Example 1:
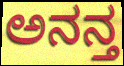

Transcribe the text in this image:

ಅನನ್ತ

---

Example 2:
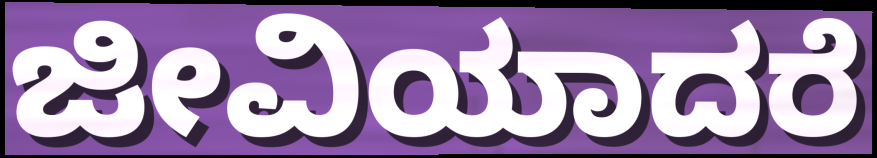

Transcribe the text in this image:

ಜೀವಿಯಾದರೆ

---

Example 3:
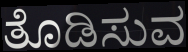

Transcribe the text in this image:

ತೊಡಿಸುವ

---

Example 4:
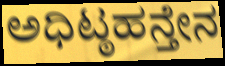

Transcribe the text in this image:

ಅಧಿಟ್ಠಹನ್ತೇನ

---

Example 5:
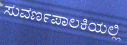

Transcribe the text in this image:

ಸುವರ್ಣಪಾಲಕಿಯಲ್ಲಿ